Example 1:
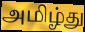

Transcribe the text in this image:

அமிழ்து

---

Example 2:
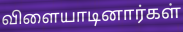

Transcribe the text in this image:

விளையாடினார்கள்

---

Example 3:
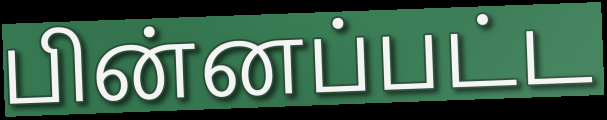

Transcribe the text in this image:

பின்னப்பட்ட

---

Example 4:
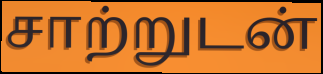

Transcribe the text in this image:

சாற்றுடன்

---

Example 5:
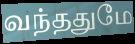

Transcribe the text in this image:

வந்ததுமே